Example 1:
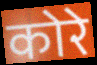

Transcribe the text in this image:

कोरे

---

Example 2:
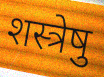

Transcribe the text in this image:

शस्त्रेषु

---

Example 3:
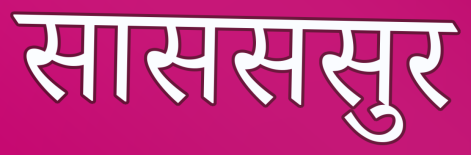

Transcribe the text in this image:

सासससुर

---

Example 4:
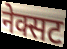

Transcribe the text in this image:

नेक्सट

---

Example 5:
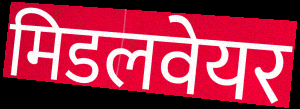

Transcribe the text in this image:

मिडलवेयर